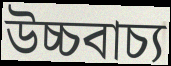
উচ্চবাচ্য